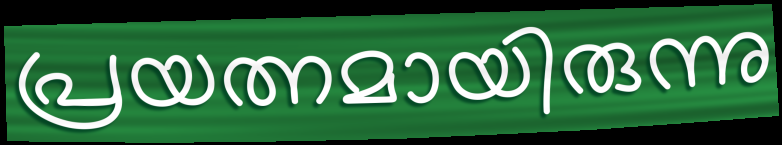
പ്രയത്നമായിരുന്നു